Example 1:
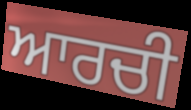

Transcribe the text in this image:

ਆਰਚੀ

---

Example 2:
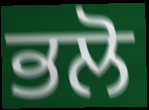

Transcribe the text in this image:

ਭਲੋ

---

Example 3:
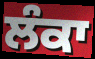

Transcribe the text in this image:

ਲੰਕਾ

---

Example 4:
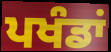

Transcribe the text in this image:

ਪਖੰਡਾਂ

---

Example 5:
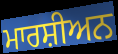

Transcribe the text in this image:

ਮਾਰਸ਼ੀਅਨ